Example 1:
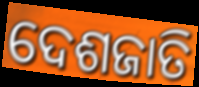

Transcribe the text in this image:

ଦେଶଜାତି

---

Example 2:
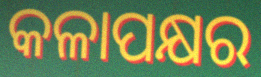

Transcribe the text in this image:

କଳାପକ୍ଷର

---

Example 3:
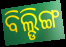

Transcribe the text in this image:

ବିଲ୍ଡିଙ୍ଗ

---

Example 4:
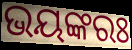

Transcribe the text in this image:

ଭୟଙ୍କରଃ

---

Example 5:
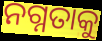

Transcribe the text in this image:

ନଗ୍ନତାକୁ